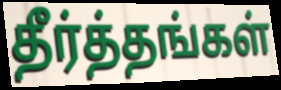
தீர்த்தங்கள்